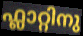
ഫ്ലാറ്റിനു